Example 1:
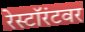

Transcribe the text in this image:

रेस्टॉरंटवर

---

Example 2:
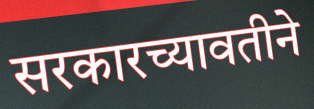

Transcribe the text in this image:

सरकारच्यावतीने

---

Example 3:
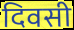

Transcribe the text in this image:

दिवसी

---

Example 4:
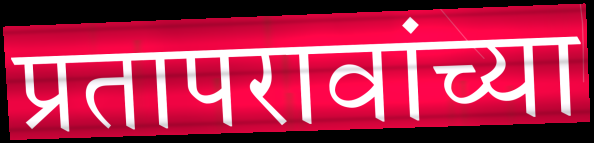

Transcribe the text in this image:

प्रतापरावांच्या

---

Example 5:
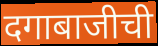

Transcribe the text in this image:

दगाबाजीची